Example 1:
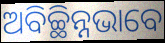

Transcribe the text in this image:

ଅବିଚ୍ଛିନ୍ନଭାବେ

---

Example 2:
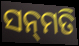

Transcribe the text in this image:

ସନ୍‌ମତି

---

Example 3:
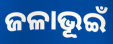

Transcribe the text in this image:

ଜଳାଭୂଇଁ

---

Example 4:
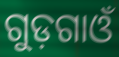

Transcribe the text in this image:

ଗୁଡ଼ଗାଓଁ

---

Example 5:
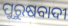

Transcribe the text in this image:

ପୁରୁଷବାଦୀ